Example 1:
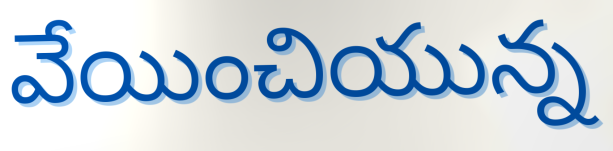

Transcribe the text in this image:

వేయించియున్న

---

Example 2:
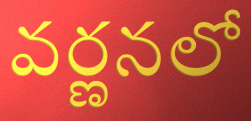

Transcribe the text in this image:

వర్ణనలో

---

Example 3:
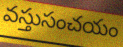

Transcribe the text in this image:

వస్తుసంచయం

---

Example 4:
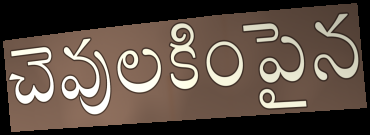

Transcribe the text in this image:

చెవులకింపైన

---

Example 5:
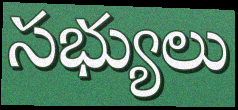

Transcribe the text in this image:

సభ్యులు